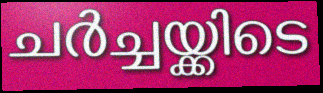
ചർച്ചയ്ക്കിടെ